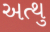
અત્થુ